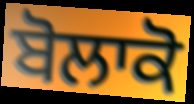
ਬੋਲਾਕੋ